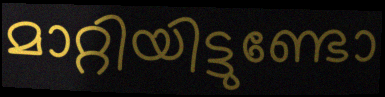
മാറ്റിയിട്ടുണ്ടോ